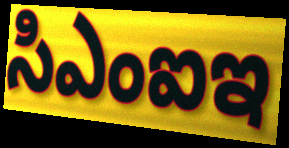
సిఎంఐఇ